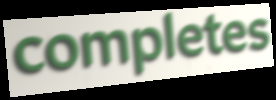
completes